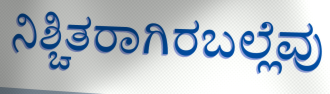
ನಿಶ್ಚಿತರಾಗಿರಬಲ್ಲೆವು